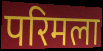
परिमला